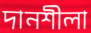
দানশীলা